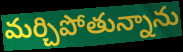
మర్చిపోతున్నాను